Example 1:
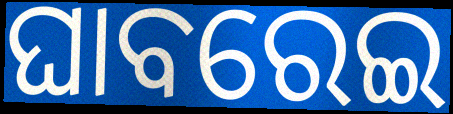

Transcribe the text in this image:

ଘାବରେଇ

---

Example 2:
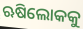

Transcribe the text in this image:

ଋଷିଲୋକକୁ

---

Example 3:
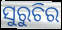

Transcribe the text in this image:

ସୁରୁଚିର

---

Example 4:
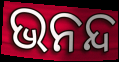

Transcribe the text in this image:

ଭନନ୍ଦ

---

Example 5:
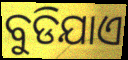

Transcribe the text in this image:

ବୁଡିଯାଏ